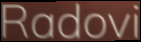
Radovi